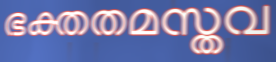
ഭക്തതമസ്തവ